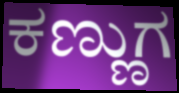
ಕಣ್ಣುಗ